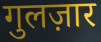
गुलज़ार